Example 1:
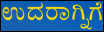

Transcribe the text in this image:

ಉದರಾಗ್ನಿಗೆ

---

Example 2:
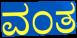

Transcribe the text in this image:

ವಂತ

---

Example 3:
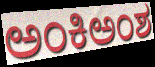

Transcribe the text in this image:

ಅಂಕಿಅಂಶ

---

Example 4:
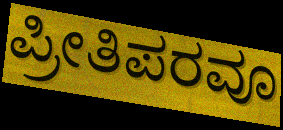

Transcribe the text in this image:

ಪ್ರೀತಿಪರವೂ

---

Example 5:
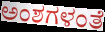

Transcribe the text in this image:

ಅಂಶಗಳಂತೆ